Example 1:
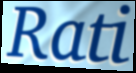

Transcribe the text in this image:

Rati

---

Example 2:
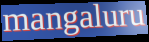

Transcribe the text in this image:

mangaluru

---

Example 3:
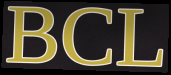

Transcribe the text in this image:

BCL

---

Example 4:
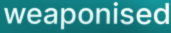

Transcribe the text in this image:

weaponised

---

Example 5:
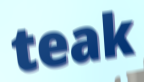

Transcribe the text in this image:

teak